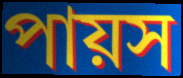
পায়স